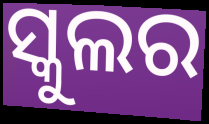
ସ୍କୁଲର